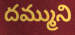
దమ్ముని